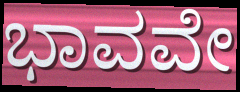
ಭಾವವೇ